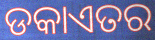
ଡକାଏତର